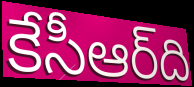
కేసీఆర్‌ది